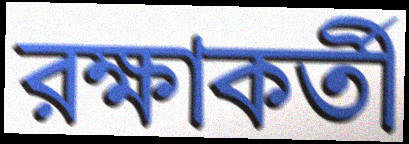
রক্ষাকর্তী